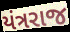
યંત્રરાજ